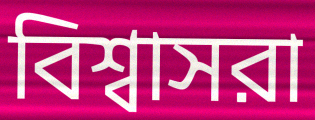
বিশ্বাসরা